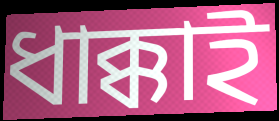
ধাক্কাই